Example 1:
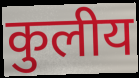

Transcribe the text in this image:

कुलीय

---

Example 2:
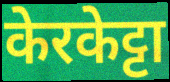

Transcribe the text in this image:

केरकेट्टा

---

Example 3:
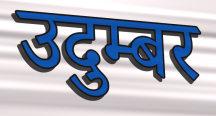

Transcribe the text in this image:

उदुम्बर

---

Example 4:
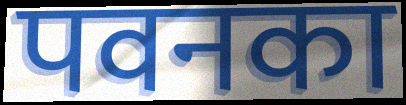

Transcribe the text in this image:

पवनका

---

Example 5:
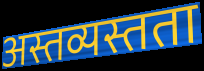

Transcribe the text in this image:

अस्तव्यस्तता